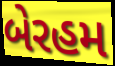
બેરહમ